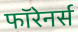
फॉरेनर्स